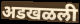
अडखळली